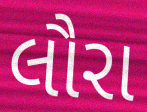
લૌરા